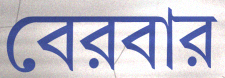
বেরবার